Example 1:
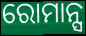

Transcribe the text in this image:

ରୋମାନ୍ସ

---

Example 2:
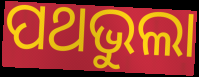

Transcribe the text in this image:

ପଥଭୁଲା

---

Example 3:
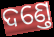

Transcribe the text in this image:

ଦଣ୍ତେ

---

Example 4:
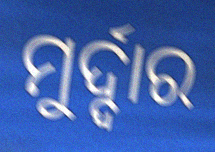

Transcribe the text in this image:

ମୁର୍ଦ୍ଦାର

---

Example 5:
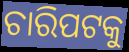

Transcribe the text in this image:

ଚାରିପଟକୁ